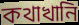
কথাখানি